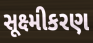
સૂક્ષ્મીકરણ